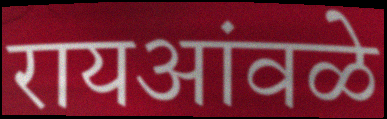
रायआंवळे